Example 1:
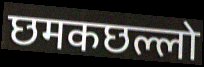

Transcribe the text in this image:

छमकछल्लो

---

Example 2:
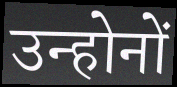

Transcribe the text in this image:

उन्होनों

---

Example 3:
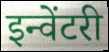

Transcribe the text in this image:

इन्वेंटरी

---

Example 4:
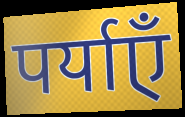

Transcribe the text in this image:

पर्याएँ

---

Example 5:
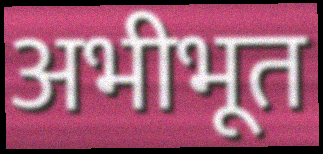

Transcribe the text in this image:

अभीभूत